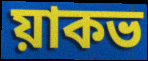
য়াকভ